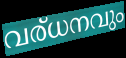
വര്ധനവും